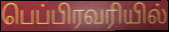
பெப்பிரவரியில்